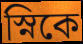
স্নিকে